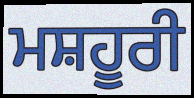
ਮਸ਼ਹੂਰੀ